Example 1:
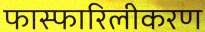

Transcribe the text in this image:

फास्फारिलीकरण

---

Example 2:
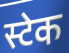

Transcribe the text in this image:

स्टेक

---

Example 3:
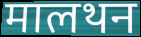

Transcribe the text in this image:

मालथन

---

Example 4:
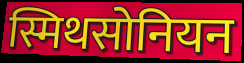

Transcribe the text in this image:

स्मिथसोनियन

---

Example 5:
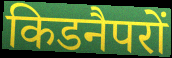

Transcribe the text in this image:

किडनैपरों